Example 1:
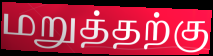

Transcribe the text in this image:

மறுத்தற்கு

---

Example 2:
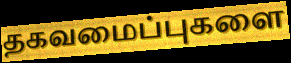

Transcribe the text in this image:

தகவமைப்புகளை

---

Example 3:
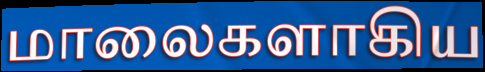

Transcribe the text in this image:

மாலைகளாகிய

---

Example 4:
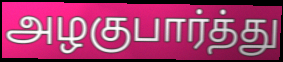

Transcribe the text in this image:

அழகுபார்த்து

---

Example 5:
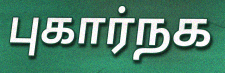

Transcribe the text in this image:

புகார்நக